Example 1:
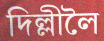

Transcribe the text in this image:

দিল্লীলৈ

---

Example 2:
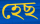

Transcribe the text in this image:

হেছ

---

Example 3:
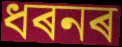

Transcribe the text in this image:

ধৰনৰ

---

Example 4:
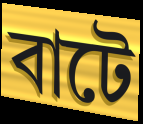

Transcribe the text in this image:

বাটে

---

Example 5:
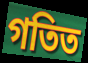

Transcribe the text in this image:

গতিত